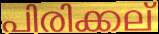
പിരിക്കല്